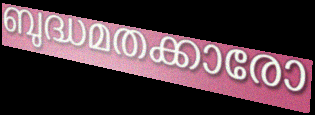
ബുദ്ധമതക്കാരോ